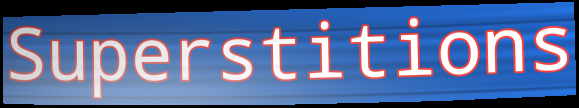
Superstitions